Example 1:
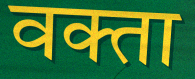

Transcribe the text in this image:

वक्ता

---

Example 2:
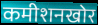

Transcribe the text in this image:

कमीशनखोर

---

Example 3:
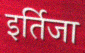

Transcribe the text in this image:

इर्तिजा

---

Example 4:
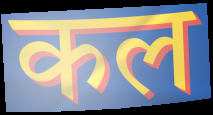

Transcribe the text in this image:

कल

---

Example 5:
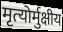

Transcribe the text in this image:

मृत्‍योर्मुक्षीय